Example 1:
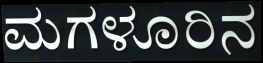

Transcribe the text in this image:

ಮಗಳೂರಿನ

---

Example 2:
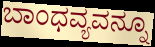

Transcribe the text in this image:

ಬಾಂಧವ್ಯವನ್ನೂ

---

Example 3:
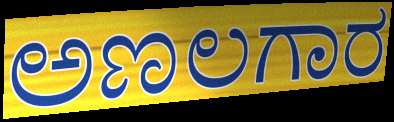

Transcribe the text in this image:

ಅಣಲಗಾರ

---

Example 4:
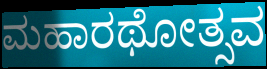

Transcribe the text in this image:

ಮಹಾರಥೋತ್ಸವ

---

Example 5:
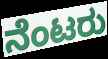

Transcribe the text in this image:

ನೆಂಟರು